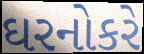
ઘરનોકરે